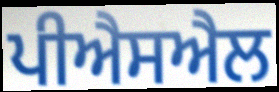
ਪੀਐਸਐਲ